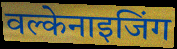
वल्केनाइजिंग